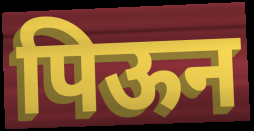
पिऊन